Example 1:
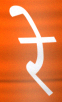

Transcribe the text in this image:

रे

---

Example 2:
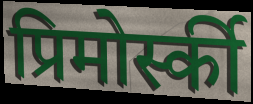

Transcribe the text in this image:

प्रिमोर्स्की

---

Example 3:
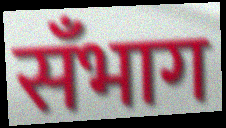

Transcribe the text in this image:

सँभाग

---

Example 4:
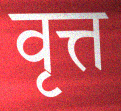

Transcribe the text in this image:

वृत्त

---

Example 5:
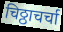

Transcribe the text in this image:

चिठ्ठाचर्चा